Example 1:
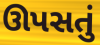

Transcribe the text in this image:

ઊપસતું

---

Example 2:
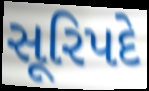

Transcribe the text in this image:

સૂરિપદે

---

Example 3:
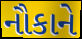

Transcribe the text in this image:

નૌકાને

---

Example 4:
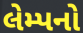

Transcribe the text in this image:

લેમ્પનો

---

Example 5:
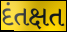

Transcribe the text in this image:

દંતક્ષત